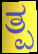
ತ್ಪ